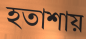
হতাশায়